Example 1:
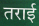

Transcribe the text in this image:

तराई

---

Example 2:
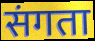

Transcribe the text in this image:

संगता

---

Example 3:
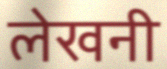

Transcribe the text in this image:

लेखनी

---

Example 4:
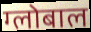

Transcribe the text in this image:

ग्लोबाल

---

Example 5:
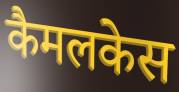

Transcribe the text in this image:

कैमलकेस